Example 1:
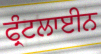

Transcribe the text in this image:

ਫ੍ਰੰਟਲਾਈਨ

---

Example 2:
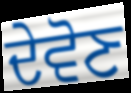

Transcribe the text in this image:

ਦੇਵੋਣ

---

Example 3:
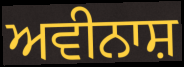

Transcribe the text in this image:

ਅਵੀਨਾਸ਼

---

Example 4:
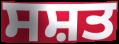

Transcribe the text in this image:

ਸਸ਼ਤ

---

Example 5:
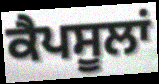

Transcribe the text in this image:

ਕੈਪਸੂਲਾਂ